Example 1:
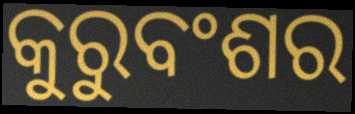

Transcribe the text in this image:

କୁରୁବଂଶର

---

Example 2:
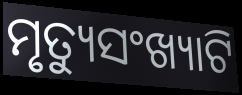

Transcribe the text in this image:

ମୃତ୍ୟୁସଂଖ୍ୟାଟି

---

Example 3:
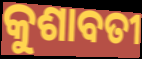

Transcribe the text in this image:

କୁଶାବତୀ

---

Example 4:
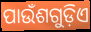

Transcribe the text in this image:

ପାଉଁଶଗୁଡ଼ିଏ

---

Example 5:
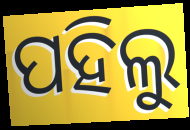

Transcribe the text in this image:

ପହିଲୁ